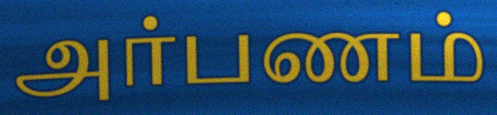
அர்பணம்